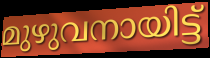
മുഴുവനായിട്ട്